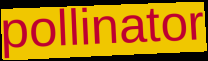
pollinator